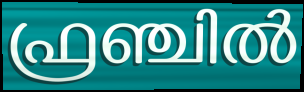
ഫ്രഞ്ചിൽ